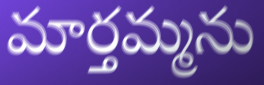
మార్తమ్మను